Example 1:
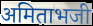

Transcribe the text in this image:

अमिताभजी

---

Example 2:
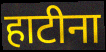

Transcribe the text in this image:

हाटीना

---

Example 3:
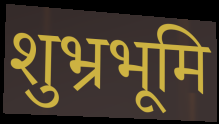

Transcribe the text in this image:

शुभ्रभूमि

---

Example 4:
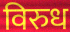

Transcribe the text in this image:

विरुध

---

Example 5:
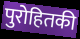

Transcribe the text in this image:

पुरोहितकी